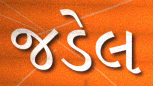
જડેલ